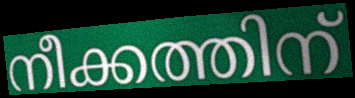
നീക്കത്തിന്